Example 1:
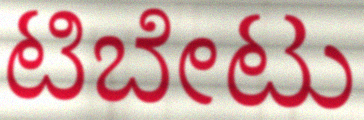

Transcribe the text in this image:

ಟಿಬೇಟು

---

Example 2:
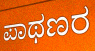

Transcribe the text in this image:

ಪಾಥಣರ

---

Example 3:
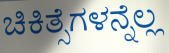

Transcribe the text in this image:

ಚಿಕಿತ್ಸೆಗಳನ್ನೆಲ್ಲ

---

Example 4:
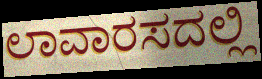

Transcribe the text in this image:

ಲಾವಾರಸದಲ್ಲಿ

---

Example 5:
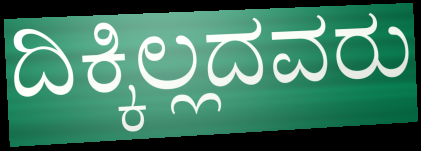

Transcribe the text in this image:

ದಿಕ್ಕಿಲ್ಲದವರು